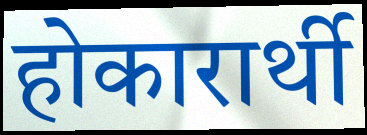
होकारार्थी